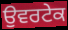
ਉਵਰਟੇਕ